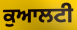
ਕੁਆਲਟੀ